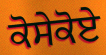
ਕੋਸੇਕੋਏ